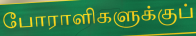
போராளிகளுக்குப்